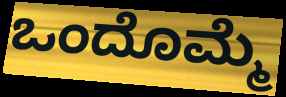
ಒಂದೊಮ್ಮೆ